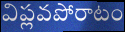
విప్లవపోరాటం